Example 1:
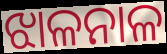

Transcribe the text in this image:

ଝାଳନାଳ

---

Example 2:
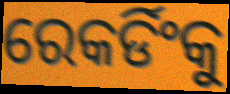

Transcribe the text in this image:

ରେକର୍ଡିଂକୁ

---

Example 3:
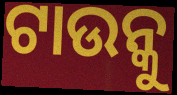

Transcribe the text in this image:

ଟାଉନ୍କୁ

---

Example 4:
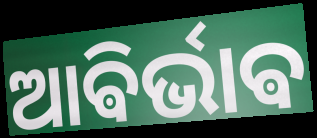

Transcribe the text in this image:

ଆଵିର୍ଭାଵ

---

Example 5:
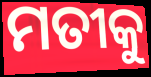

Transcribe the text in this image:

ମତୀକୁ